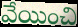
వేయించి